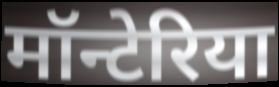
मॉन्टेरिया